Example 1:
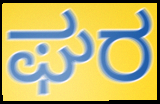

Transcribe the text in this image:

ಘರ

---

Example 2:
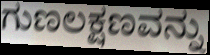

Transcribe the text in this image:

ಗುಣಲಕ್ಷಣವನ್ನು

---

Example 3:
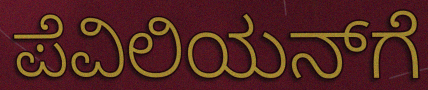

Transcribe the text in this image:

ಪೆವಿಲಿಯನ್‌ಗೆ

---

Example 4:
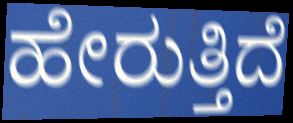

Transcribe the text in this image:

ಹೇರುತ್ತಿದೆ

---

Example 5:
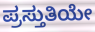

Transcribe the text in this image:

ಪ್ರಸ್ತುತಿಯೇ